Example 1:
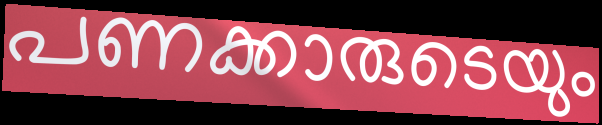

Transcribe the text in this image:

പണക്കാരുടെയും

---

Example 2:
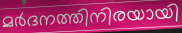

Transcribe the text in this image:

മർദനത്തിനിരയായി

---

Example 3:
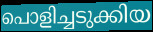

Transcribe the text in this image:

പൊളിച്ചടുക്കിയ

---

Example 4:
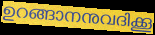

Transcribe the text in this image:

ഉറങ്ങാനനുവദിക്കൂ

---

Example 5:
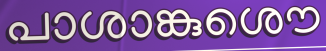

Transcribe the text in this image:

പാശാങ്കുശൌ